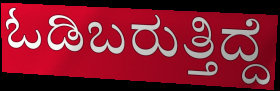
ಓಡಿಬರುತ್ತಿದ್ದೆ